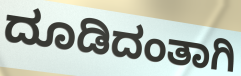
ದೂಡಿದಂತಾಗಿ